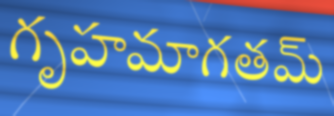
గృహమాగతమ్